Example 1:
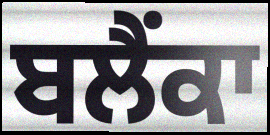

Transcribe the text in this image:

ਬਲੈਂਕਾ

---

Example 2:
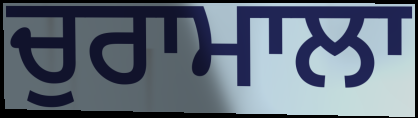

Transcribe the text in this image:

ਚੁਰਾਮਾਲਾ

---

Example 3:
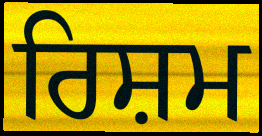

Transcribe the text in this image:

ਰਿਸ਼ਮ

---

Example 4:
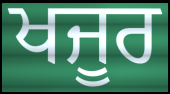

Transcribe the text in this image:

ਖਜੂਰ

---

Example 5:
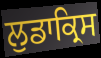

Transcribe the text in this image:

ਲੁਡਾਕ੍ਰਿਸ